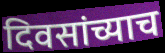
दिवसांच्याच